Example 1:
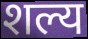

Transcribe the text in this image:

शल्य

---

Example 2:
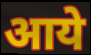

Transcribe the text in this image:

आये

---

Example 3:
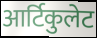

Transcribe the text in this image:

आर्टिकुलेट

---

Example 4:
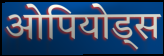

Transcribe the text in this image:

ओपियोड्स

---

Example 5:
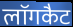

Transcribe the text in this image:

लॉगकैट